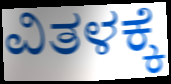
ವಿತಳಕ್ಕೆ